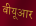
वीयूआर